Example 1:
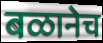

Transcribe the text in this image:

बळानेच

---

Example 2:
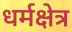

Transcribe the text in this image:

धर्मक्षेत्र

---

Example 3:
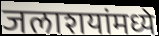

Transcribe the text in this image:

जलाशयांमध्ये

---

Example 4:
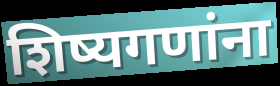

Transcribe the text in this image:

शिष्यगणांना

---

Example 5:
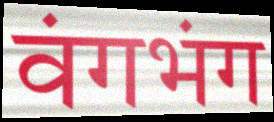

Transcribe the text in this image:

वंगभंग